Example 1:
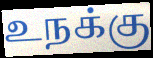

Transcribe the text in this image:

உநக்கு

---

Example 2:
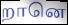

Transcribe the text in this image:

றானெ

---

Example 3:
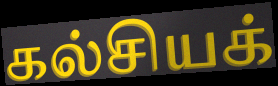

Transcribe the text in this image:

கல்சியக்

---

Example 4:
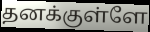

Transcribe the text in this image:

தனக்குள்ளே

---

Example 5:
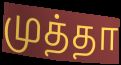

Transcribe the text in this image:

முத்தா